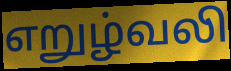
எறுழ்வலி